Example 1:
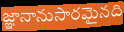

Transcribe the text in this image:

జ్ఞానానుసారమైనది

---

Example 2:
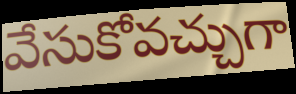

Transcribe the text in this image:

వేసుకోవచ్చుగా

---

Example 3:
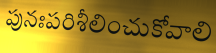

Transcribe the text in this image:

పునఃపరిశీలించుకోవాలి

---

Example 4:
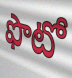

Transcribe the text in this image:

ఫొటో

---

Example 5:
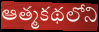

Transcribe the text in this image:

ఆత్మకథలోని